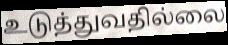
உடுத்துவதில்லை